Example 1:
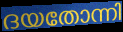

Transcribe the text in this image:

ദയതോന്നി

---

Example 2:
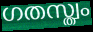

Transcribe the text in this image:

ഗതസ്ത്വം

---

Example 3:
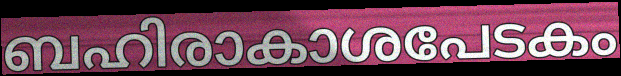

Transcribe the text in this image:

ബഹിരാകാശപേടകം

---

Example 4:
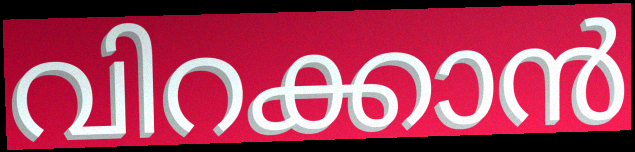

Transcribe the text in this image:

വിറക്കാൻ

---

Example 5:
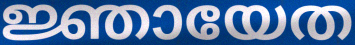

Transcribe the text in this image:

ജ്ഞായേത